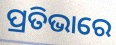
ପ୍ରତିଭାରେ